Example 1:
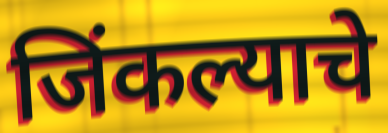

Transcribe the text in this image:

जिंकल्याचे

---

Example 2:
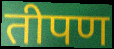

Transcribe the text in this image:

तीपण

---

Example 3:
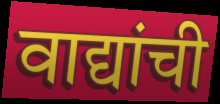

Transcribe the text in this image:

वाद्यांची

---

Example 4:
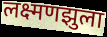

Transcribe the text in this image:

लक्ष्मणझुला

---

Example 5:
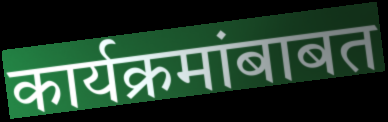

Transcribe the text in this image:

कार्यक्रमांबाबत